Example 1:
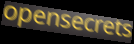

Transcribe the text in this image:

opensecrets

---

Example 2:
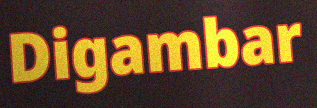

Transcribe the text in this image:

Digambar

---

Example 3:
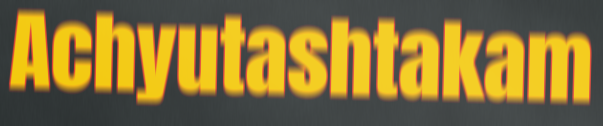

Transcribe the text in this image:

Achyutashtakam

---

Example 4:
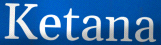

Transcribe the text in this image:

Ketana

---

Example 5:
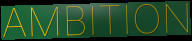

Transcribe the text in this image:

AMBITION